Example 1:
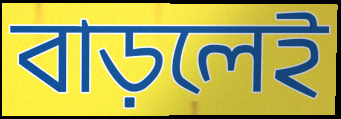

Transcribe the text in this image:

বাড়লেই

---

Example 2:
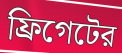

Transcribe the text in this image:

ফ্রিগেটের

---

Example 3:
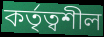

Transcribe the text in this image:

কর্তৃত্বশীল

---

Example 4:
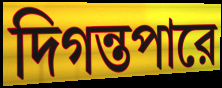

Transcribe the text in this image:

দিগন্তপারে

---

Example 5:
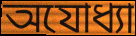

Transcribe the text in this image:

অযোধ্যা